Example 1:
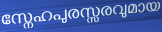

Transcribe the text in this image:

സ്നേഹപുരസ്സരവുമായ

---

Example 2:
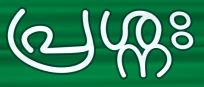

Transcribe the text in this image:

പ്രശ്നഃ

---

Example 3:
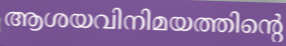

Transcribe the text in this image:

ആശയവിനിമയത്തിന്റെ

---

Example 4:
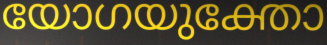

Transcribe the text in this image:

യോഗയുക്തോ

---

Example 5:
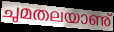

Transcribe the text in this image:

ചുമതലയാണു്